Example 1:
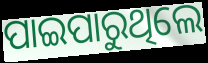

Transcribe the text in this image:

ପାଇପାରୁଥିଲେ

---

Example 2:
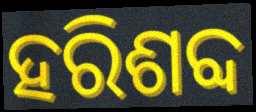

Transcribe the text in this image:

ହରିଶବ୍ଦ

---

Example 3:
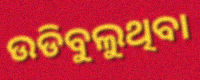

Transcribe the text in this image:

ଉଡିବୁଲୁଥିବା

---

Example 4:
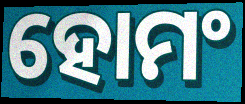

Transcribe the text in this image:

ହୋମଂ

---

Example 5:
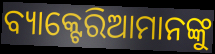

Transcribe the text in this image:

ବ୍ୟାକ୍ଟେରିଆମାନଙ୍କୁ